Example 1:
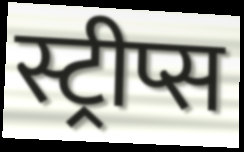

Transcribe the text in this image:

स्ट्रीप्स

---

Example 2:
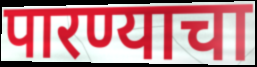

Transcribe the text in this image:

पारण्याचा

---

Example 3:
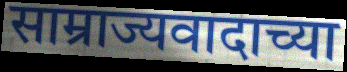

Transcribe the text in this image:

साम्राज्यवादाच्या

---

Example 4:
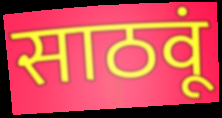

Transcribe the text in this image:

साठवूं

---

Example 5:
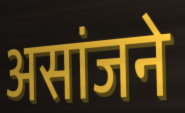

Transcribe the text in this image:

असांजने